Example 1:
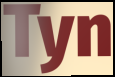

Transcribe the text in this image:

Tyn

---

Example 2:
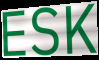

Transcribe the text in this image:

ESK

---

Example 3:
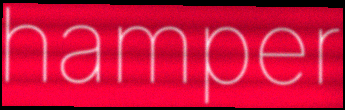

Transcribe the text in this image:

hamper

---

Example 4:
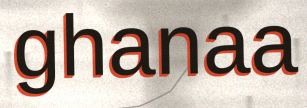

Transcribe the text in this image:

ghanaa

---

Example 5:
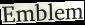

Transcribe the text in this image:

Emblem